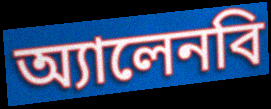
অ্যালেনবি